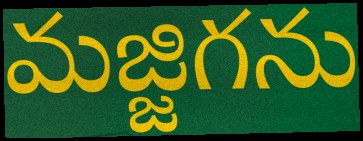
మజ్జిగను